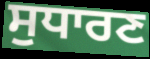
ਸੁਧਾਰਣ